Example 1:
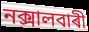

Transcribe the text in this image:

নক্সালবাৰী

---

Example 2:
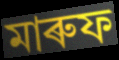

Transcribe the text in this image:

মাৰুফ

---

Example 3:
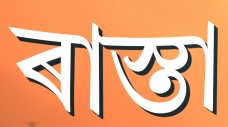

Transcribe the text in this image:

ৰাস্তা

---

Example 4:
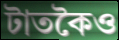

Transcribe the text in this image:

টাতকৈও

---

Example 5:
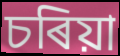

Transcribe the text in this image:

চৰিয়া